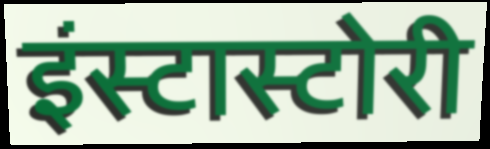
इंस्टास्टोरी